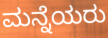
ಮನ್ನೆಯರು